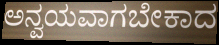
ಅನ್ವಯವಾಗಬೇಕಾದ